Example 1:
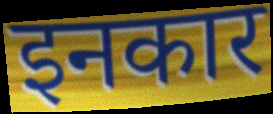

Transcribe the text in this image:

इनकार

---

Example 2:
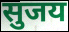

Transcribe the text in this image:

सुजय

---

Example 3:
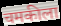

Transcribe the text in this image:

चमकीला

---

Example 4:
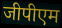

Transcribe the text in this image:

जीपीएम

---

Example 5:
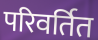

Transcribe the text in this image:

परिवर्तित